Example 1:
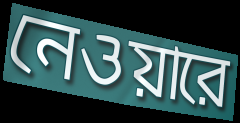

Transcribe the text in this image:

নেওয়ারে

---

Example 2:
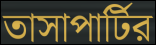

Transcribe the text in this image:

তাসাপার্টির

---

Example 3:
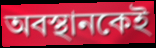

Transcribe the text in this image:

অবস্থানকেই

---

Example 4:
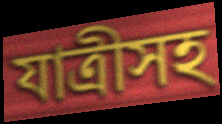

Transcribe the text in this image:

যাত্রীসহ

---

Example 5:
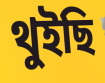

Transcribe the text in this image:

থুইছি